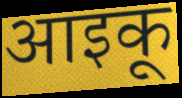
आइकू